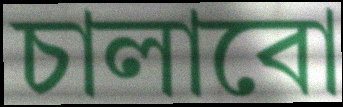
চালাবো